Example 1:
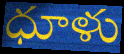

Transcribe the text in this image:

ధూళు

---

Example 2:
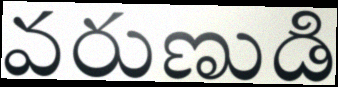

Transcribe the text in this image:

వరుణుడి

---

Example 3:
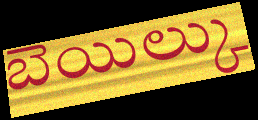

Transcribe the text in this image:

బెయిల్కు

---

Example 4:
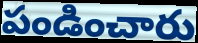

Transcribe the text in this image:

పండించారు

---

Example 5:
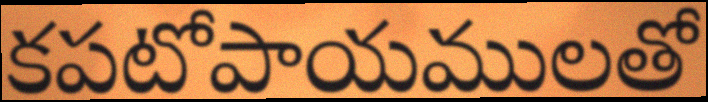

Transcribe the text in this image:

కపటోపాయములతో